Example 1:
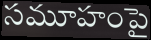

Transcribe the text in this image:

సమూహంపై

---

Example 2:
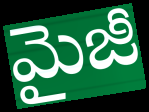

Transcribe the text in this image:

మైజీ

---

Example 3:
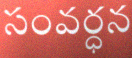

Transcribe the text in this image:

సంవర్ధన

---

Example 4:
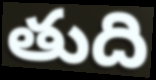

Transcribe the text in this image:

తుది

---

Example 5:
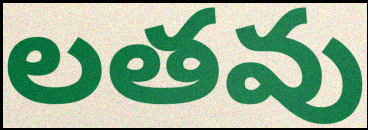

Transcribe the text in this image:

లతవు